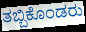
ತಬ್ಬಿಕೊಂಡರು